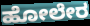
ಹೋಲೇರ